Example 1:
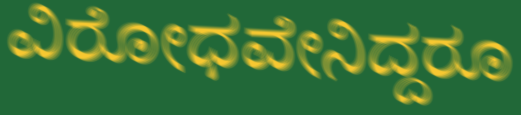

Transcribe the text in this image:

ವಿರೋಧವೇನಿದ್ದರೂ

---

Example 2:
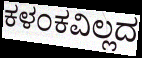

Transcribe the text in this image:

ಕಳಂಕವಿಲ್ಲದ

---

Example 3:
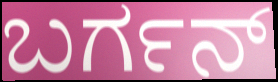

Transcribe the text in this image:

ಬರ್ಗನ್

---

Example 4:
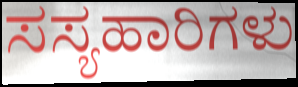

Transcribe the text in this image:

ಸಸ್ಯಹಾರಿಗಳು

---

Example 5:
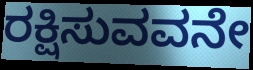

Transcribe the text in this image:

ರಕ್ಷಿಸುವವನೇ